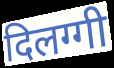
दिलग्गी